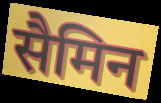
सैमिन